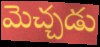
మెచ్చడు